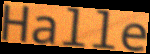
Halle